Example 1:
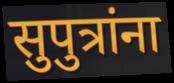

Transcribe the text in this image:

सुपुत्रांना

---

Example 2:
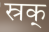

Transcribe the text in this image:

स्रक्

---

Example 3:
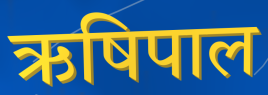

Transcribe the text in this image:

ऋषिपाल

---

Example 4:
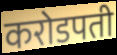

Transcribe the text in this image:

करोडपती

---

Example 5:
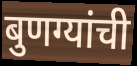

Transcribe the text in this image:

बुणग्यांची